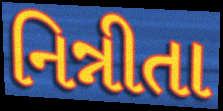
નિન્નીતા